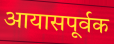
आयासपूर्वक